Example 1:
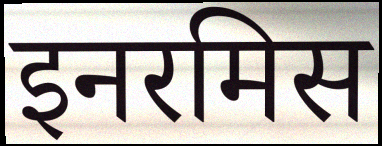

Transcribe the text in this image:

इनरमिस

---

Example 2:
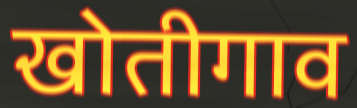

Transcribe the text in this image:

खोतीगाव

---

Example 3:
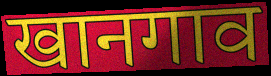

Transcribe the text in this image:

खानगाव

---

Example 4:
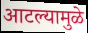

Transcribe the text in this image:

आटल्यामुळे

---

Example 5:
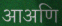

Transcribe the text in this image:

आअणि